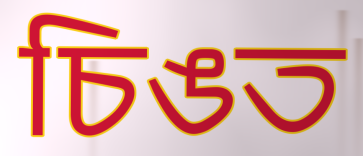
চিঙত